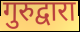
गुरुद्वारा